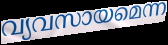
വ്യവസായമെന്ന